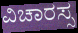
ವಿಚಾರಸ್ಸ